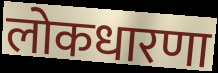
लोकधारणा